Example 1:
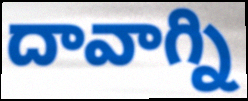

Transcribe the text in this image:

దావాగ్ని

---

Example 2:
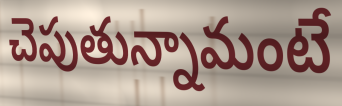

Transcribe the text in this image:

చెపుతున్నామంటే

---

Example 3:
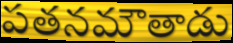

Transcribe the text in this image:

పతనమౌతాడు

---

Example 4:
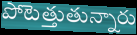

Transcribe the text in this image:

పోటెత్తుతున్నారు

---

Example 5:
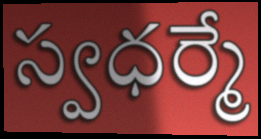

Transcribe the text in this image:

స్వధర్మే